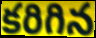
కరిగిన